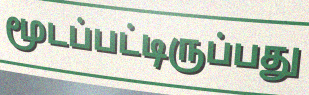
மூடப்பட்டிருப்பது